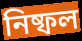
নিষ্ফল